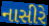
નાસીરે